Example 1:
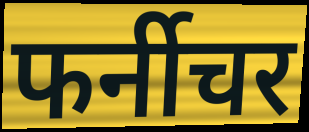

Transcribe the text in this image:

फर्नीचर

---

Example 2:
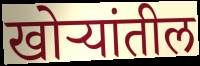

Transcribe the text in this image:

खोऱ्यांतील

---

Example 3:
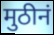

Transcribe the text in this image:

मुठीनं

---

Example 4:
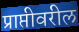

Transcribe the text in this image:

प्राप्तीवरील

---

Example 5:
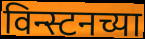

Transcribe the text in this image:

विन्स्टनच्या